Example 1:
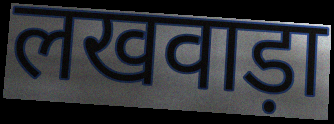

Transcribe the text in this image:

लखवाड़ा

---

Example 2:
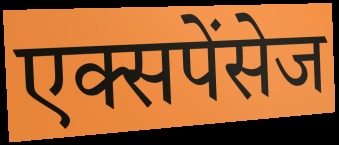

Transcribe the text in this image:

एक्सपेंसेज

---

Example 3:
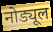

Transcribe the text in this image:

नोड्यूल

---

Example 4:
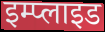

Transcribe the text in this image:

इम्प्लाइड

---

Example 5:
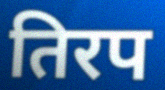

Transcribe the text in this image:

तिरप